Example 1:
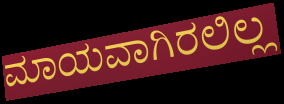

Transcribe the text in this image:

ಮಾಯವಾಗಿರಲಿಲ್ಲ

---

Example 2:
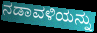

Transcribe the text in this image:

ನಡಾವಳಿಯನ್ನು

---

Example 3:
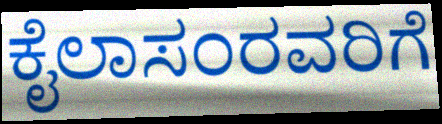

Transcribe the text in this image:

ಕೈಲಾಸಂರವರಿಗೆ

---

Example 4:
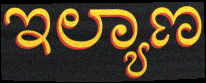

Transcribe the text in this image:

ಇಲ್ಯಾಣ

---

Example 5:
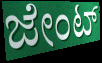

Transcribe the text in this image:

ಜೇಂಟ್